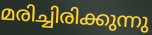
മരിച്ചിരിക്കുന്നു